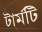
টার্মটি